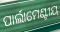
ପାର୍ଲାମେଣ୍ଟୀୟ